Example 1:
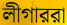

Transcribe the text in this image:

লীগাররা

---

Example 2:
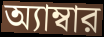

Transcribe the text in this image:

অ্যাম্বার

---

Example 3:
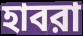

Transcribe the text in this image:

হাবরা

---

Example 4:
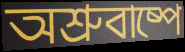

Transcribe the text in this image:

অশ্রুবাষ্পে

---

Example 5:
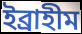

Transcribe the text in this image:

ইব্রাহীম